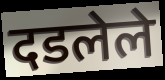
दडलेले